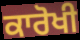
ਕਾਰੋਖੀ